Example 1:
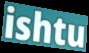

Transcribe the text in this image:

ishtu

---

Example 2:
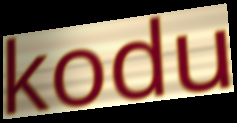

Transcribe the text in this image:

kodu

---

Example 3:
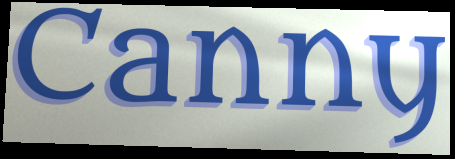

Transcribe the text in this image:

Canny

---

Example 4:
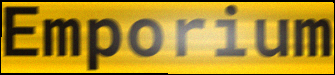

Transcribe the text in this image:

Emporium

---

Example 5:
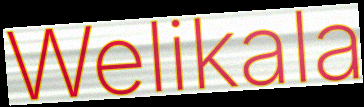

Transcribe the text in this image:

Welikala